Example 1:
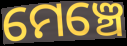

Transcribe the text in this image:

ମେଞ୍ଚେ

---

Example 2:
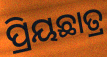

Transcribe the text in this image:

ପ୍ରିୟଛାତ୍ର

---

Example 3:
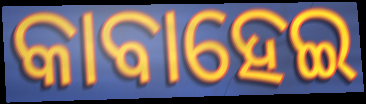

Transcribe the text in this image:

କାବାହେଇ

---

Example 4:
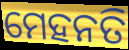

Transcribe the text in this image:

ମେହନତି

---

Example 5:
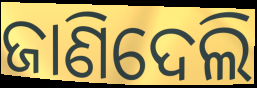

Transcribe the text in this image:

ଜାଣିଦେଲି